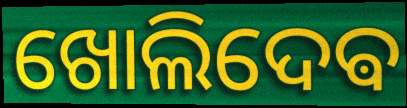
ଖୋଲିଦେଵ